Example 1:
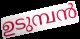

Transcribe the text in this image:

ഉടുമ്പൻ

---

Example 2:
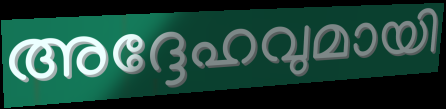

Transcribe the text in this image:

അദ്ദേഹവുമായി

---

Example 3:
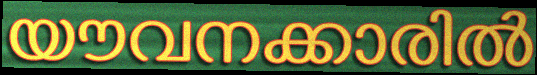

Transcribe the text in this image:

യൗവനക്കാരിൽ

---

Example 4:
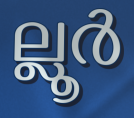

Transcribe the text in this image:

ല്ലൂർ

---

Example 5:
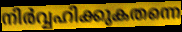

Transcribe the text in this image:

നിർവ്വഹിക്കുകതന്നെ